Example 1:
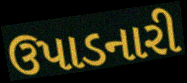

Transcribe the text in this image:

ઉપાડનારી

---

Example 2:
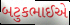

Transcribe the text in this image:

બટુકભાઈએ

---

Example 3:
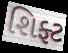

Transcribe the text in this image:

શિફ્ટ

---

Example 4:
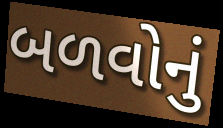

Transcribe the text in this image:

બળવોનું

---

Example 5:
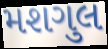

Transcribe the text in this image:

મશગુલ